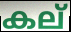
കല്